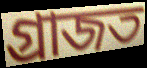
গ্ৰাজত